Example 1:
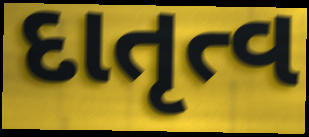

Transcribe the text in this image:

દાતૃત્વ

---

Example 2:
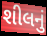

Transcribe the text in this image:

શીલનું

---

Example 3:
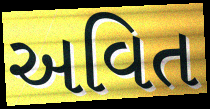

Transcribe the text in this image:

અવિત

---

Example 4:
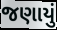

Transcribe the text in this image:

જણાયું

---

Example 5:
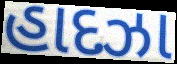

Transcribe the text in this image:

હાદઝા